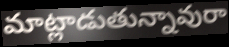
మాట్లాడుతున్నావురా